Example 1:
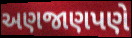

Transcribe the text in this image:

અણજાણપણે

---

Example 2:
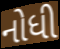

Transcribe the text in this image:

નોધી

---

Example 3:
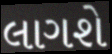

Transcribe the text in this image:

લાગશે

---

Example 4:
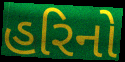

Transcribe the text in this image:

હરિનો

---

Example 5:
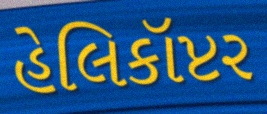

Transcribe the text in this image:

હેલિકૉપ્ટર